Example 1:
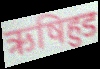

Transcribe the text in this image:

ऋषिहुड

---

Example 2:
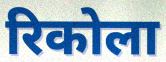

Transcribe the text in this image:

रिकोला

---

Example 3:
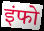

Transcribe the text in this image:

इंफो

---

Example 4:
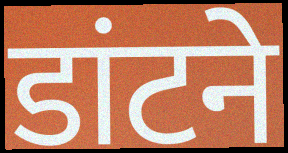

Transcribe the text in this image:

डांटने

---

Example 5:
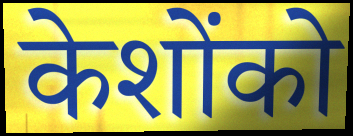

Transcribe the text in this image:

केशोंको